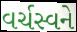
વર્ચસ્વને